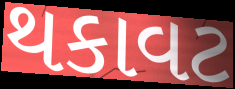
થકાવટ